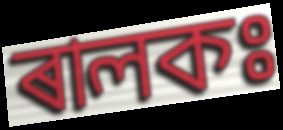
ৰালকঃ